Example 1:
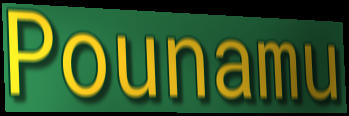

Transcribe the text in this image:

Pounamu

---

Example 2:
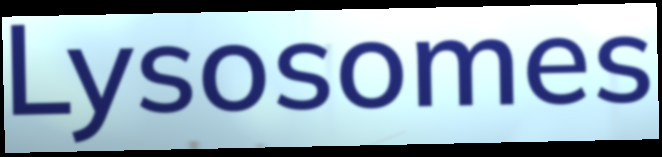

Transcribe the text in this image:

Lysosomes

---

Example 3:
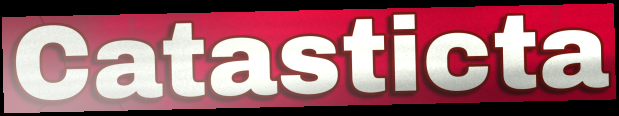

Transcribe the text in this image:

Catasticta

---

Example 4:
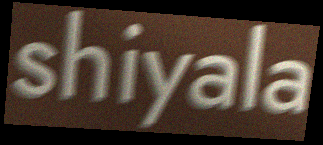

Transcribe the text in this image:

shiyala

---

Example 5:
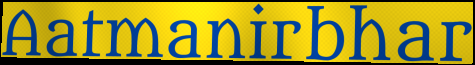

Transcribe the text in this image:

Aatmanirbhar